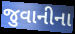
જુવાનીના